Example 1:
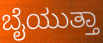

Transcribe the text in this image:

ಬೈಯುತ್ತಾ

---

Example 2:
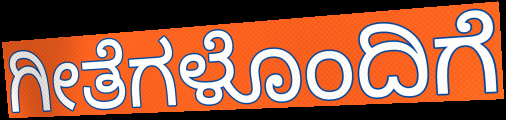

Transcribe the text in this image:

ಗೀತೆಗಳೊಂದಿಗೆ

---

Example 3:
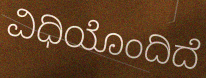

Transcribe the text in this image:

ವಿಧಿಯೊಂದಿದೆ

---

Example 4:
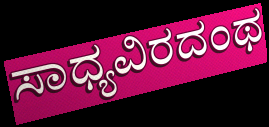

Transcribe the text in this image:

ಸಾಧ್ಯವಿರದಂಥ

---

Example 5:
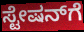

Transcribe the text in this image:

ಸ್ಟೇಷನ್‍ಗೆ